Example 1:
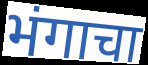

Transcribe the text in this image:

भंगाचा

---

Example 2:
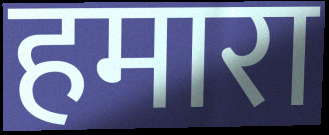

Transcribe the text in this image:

हमारा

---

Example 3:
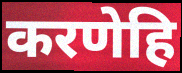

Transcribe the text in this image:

करणेहि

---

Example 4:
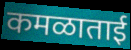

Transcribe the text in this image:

कमळाताई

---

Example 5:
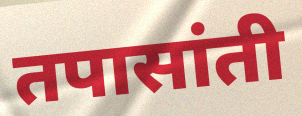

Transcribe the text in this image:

तपासांती